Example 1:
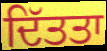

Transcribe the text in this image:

ਦਿੱਤਤਾ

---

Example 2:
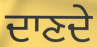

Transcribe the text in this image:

ਦਾਣਦੇ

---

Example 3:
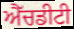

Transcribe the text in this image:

ਐੱਚਡੀਟੀ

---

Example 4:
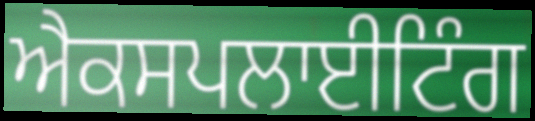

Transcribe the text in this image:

ਐਕਸਪਲਾਈਟਿੰਗ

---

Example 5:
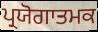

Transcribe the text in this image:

ਪ੍ਰਯੋਗਾਤਮਕ